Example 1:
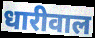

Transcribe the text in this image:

धारीवाल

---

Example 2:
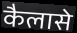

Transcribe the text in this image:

कैलासे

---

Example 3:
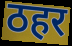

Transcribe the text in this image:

ठहर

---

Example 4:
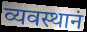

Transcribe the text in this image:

व्यवस्थानं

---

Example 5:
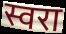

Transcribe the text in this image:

स्वरा